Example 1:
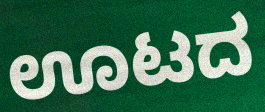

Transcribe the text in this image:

ಊಟದ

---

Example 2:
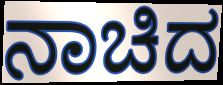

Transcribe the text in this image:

ನಾಚಿದ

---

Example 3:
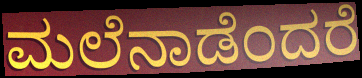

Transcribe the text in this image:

ಮಲೆನಾಡೆಂದರೆ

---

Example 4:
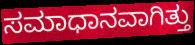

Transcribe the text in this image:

ಸಮಾಧಾನವಾಗಿತ್ತು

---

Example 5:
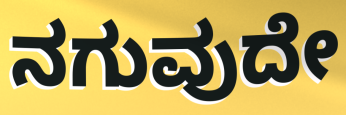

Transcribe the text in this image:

ನಗುವುದೇ